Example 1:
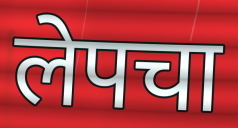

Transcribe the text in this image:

लेपचा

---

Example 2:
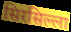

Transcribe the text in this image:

सिरसिल्ला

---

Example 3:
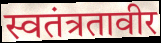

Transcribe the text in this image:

स्वतंत्रतावीर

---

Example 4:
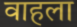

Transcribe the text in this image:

वाहला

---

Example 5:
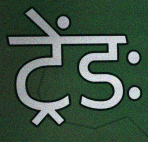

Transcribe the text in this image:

ट्रेंडः